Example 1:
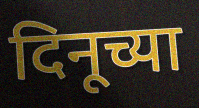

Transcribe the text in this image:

दिनूच्या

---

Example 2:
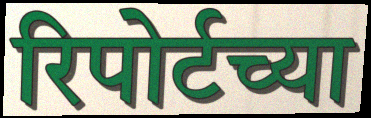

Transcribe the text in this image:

रिपोर्टच्या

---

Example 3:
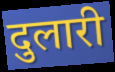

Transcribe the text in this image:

दुलारी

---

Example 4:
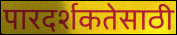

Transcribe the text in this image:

पारदर्शकतेसाठी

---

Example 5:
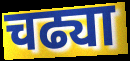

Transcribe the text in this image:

चढ्या